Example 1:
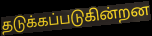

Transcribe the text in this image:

தடுக்கப்படுகின்றன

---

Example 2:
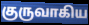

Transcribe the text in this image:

குருவாகிய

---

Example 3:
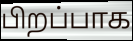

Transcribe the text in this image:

பிறப்பாக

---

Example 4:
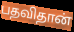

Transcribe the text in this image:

பதவிதான்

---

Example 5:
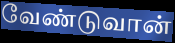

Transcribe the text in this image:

வேண்டுவான்